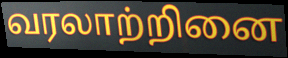
வரலாற்றினை